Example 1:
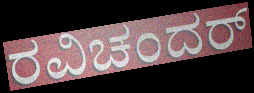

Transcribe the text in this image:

ರವಿಚಂದರ್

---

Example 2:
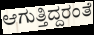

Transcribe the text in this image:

ಆಗುತ್ತಿದ್ದರಂತೆ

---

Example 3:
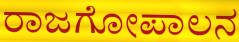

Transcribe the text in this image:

ರಾಜಗೋಪಾಲನ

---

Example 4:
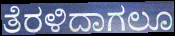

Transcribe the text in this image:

ತೆರಳಿದಾಗಲೂ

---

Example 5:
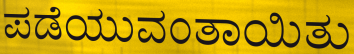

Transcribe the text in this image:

ಪಡೆಯುವಂತಾಯಿತು